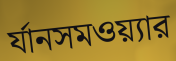
র্যানসমওয়্যার